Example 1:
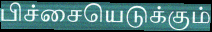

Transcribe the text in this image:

பிச்சையெடுக்கும்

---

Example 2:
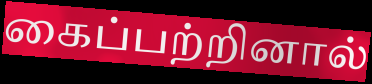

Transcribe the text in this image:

கைப்பற்றினால்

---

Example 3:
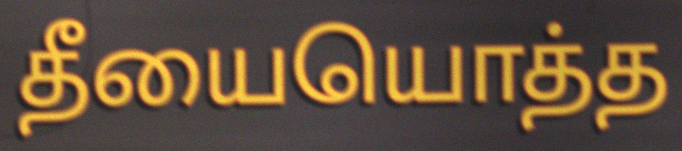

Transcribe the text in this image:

தீயையொத்த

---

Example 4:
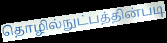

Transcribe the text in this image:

தொழில்நுட்பத்தின்படி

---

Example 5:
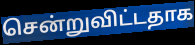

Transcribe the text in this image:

சென்றுவிட்டதாக